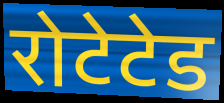
रोटेटेड